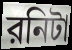
রনিটা